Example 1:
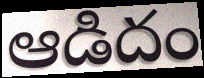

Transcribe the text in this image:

ఆడిదం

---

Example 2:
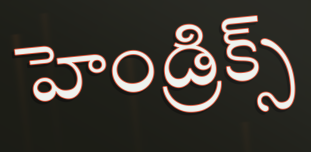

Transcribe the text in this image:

హెండ్రిక్స్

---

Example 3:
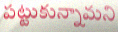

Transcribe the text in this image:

పట్టుకున్నామని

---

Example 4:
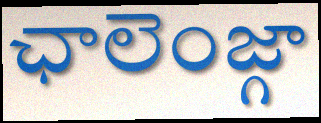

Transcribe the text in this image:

ఛాలెంజ్గా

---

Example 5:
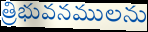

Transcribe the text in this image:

త్రిభువనములను